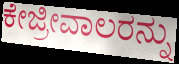
ಕೇಜ್ರೀವಾಲರನ್ನು